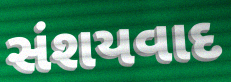
સંશયવાદ